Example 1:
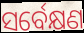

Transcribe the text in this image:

ସର୍ବେକ୍ଷଣ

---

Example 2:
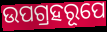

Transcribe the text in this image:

ଉପଗ୍ରହରୂପେ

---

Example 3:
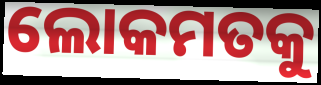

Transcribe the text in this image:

ଲୋକମତକୁ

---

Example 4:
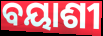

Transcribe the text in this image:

ବୟାଶୀ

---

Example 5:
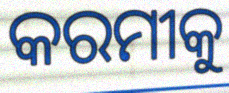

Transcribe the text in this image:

କରମୀକୁ